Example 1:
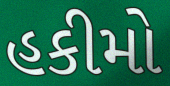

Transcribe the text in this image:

હકીમો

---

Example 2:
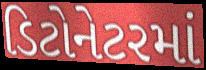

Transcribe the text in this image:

ડિટોનેટરમાં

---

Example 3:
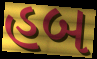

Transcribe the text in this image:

હબ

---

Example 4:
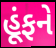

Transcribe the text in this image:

હૂંફને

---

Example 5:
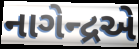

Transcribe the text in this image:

નાગેન્દ્રએ